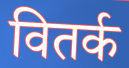
वितर्क